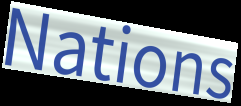
Nations